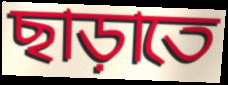
ছাড়াতে